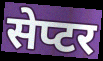
सेप्टर